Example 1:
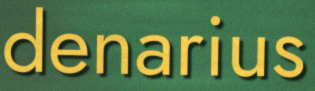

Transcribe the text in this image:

denarius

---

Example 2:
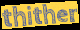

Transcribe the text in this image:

thither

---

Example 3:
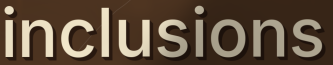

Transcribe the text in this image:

inclusions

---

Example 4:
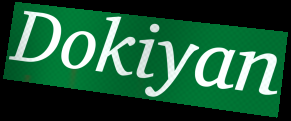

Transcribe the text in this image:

Dokiyan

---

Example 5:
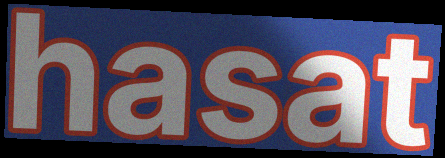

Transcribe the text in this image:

hasat